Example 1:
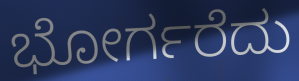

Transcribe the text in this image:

ಭೋರ್ಗರೆದು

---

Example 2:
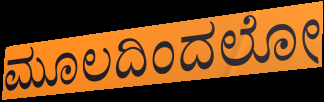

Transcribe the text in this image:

ಮೂಲದಿಂದಲೋ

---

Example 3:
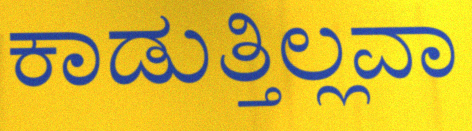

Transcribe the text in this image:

ಕಾಡುತ್ತಿಲ್ಲವಾ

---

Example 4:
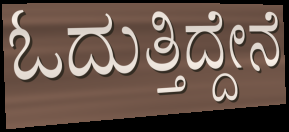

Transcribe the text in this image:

ಓದುತ್ತಿದ್ದೇನೆ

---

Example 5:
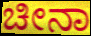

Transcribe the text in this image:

ಚೀನಾ